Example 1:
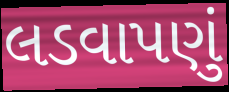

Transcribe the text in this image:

લડવાપણું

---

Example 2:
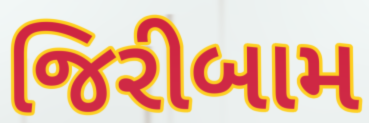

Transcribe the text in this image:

જિરીબામ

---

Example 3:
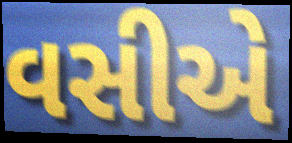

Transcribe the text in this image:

વસીએ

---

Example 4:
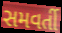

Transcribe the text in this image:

સમવર્તી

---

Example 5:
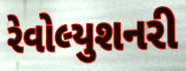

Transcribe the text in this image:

રેવોલ્યુશનરી